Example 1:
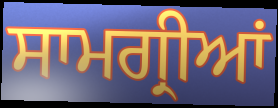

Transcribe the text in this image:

ਸਾਮਗ੍ਰੀਆਂ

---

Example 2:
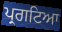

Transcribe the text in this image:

ਪ੍ਰਗਟਿਆ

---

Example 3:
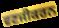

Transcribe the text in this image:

ਵਣਜੀਕਰਨ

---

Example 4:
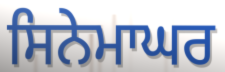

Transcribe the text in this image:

ਸਿਨੇਮਾਘਰ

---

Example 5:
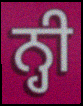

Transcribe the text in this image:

ਨ੍ਹੀ